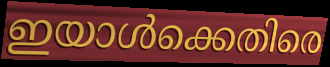
ഇയാൾക്കെതിരെ